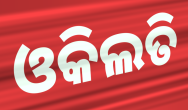
ଓକିଲତି